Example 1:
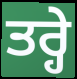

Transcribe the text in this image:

ਤਰ੍ਹੇ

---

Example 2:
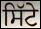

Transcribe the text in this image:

ਸਿੱਟੇ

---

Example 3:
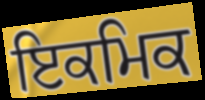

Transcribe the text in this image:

ਇਕਮਿਕ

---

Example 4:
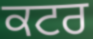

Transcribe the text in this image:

ਕਟਰ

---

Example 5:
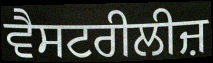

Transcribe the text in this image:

ਵੈਸਟਰੀਲੀਜ਼